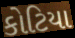
કોટિયા